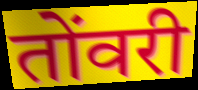
तोंवरी